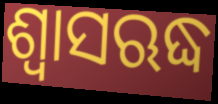
ଶ୍ୱାସଋଦ୍ଧ